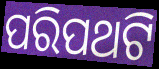
ପରିପଥଟି